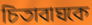
চিতাবাঘকে